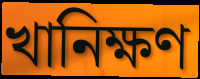
খানিক্ষণ